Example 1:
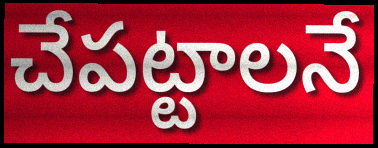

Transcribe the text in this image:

చేపట్టాలనే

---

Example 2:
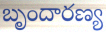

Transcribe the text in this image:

బృందారణ్య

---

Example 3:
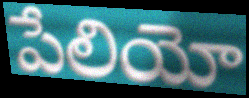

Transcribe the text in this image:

పేలియో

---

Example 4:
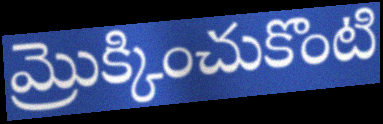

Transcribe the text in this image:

మ్రొక్కించుకొంటి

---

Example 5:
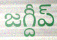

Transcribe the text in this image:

జగ్దీప్